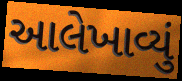
આલેખાવ્યું